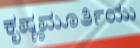
ಕೃಷ್ಣಮೂರ್ತಿಯು